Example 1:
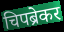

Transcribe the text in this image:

चिपब्रेकर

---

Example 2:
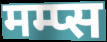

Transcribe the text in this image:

मम्प्स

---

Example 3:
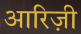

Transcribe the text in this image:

आरिज़ी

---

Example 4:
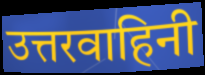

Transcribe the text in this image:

उत्तरवाहिनी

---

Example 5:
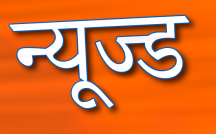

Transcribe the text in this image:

न्यूज्ड